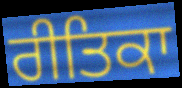
ਰੀਤਿਕਾ